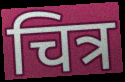
चित्र